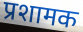
प्रशामक